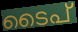
ടൈപ്